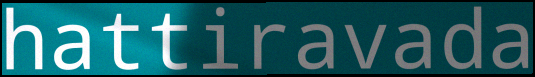
hattiravada